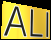
ALI